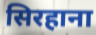
सिरहाना